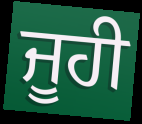
ਜੂਹੀ